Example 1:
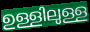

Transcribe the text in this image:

ഉള്ളിലുള്ള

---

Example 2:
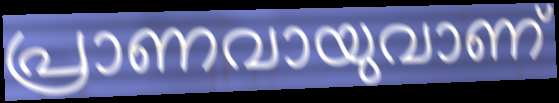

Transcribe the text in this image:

പ്രാണവായുവാണ്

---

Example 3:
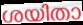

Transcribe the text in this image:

ശയിതാ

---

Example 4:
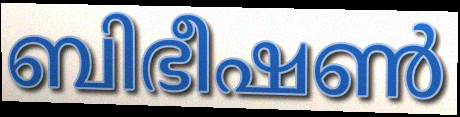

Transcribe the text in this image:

ബിഭീഷൺ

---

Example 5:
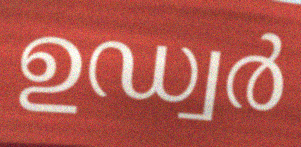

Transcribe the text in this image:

ഉഡ്വർ